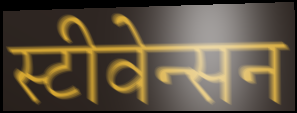
स्टीवेन्सन